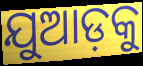
ଯୁଆଡ଼କୁ